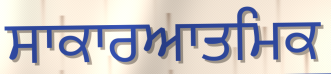
ਸਾਕਾਰਆਤਮਿਕ